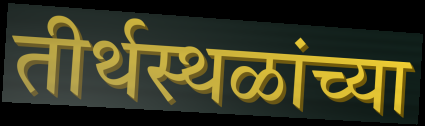
तीर्थस्थळांच्या